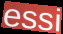
essi